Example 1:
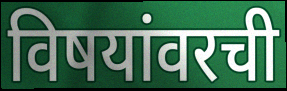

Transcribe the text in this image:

विषयांवरची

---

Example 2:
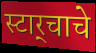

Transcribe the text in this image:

स्टार्चाचे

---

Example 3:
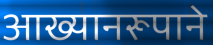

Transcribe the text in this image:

आख्यानरूपाने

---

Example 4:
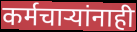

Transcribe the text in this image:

कर्मचार्‍यांनाही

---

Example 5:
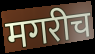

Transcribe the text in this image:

मगरीच